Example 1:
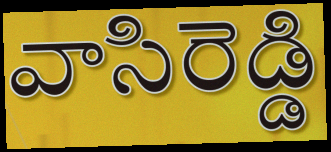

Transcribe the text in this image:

వాసిరెడ్డి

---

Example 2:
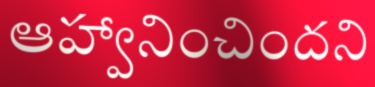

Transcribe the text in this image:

ఆహ్వానించిందని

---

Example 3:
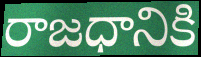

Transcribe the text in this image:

రాజధానికి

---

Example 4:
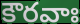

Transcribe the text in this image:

కౌరవాః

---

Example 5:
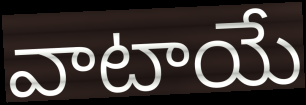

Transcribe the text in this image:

వాటాయే